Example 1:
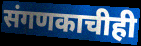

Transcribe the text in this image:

संगणकाचीही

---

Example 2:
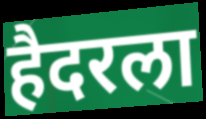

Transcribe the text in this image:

हैदरला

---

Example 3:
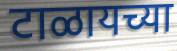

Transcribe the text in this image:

टाळायच्या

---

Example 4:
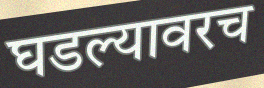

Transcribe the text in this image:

घडल्यावरच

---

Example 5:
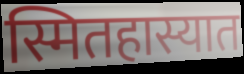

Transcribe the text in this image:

स्मितहास्यात